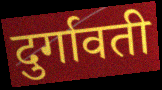
दुर्गावती